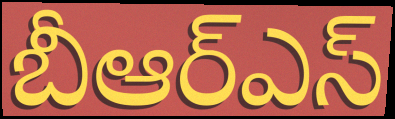
బీఆర్ఎస్